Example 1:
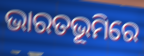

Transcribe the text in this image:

ଭାରତଭୂମିରେ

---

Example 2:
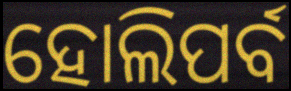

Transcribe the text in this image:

ହୋଲିପର୍ବ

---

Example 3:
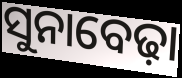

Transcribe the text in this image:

ସୁନାବେଢ଼ା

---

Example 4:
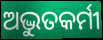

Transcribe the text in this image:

ଅଦ୍ଭୁତକର୍ମୀ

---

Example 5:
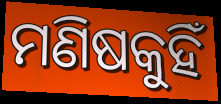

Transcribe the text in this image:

ମଣିଷକୁହିଁ